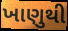
ખાણુથી